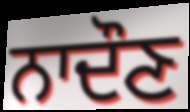
ਨਾਦੌਣ